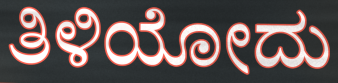
ತಿಳಿಯೋದು